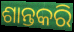
ଶାନ୍ତକରି